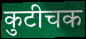
कुटीचक